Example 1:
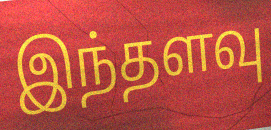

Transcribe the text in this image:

இந்தளவு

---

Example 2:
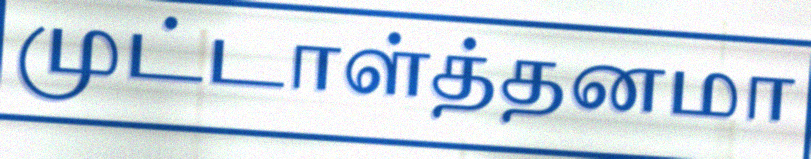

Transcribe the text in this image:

முட்டாள்த்தனமா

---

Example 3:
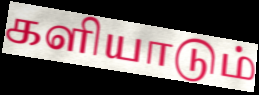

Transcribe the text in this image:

களியாடும்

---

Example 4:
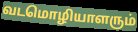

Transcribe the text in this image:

வடமொழியாளரும்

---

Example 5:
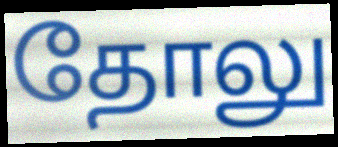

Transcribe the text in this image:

தோலு